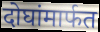
दोघांमार्फत